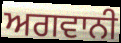
ਅਗਵਾਨੀ